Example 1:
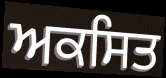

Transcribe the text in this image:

ਅਕਸਿਤ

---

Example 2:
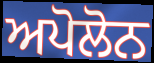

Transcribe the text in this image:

ਅਪੋਲੋਨ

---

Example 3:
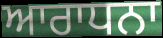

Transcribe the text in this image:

ਆਰਾਧਨਾ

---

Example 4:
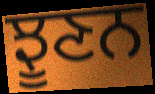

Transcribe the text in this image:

ਝੂਣਨ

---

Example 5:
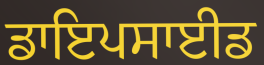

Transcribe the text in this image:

ਡਾਇਪਸਾਈਡ